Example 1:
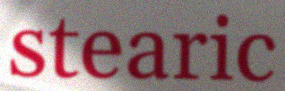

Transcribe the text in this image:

stearic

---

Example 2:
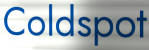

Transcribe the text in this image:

Coldspot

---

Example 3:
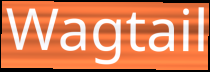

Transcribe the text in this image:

Wagtail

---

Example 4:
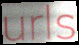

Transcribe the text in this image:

urls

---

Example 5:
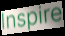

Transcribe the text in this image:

Inspire